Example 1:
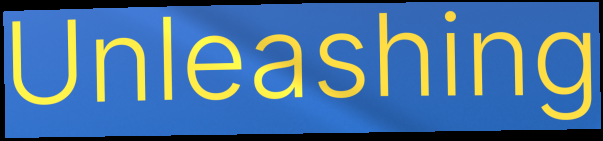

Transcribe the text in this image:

Unleashing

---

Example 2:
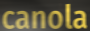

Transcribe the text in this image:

canola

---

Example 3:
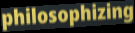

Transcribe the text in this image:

philosophizing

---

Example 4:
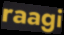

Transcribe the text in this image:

raagi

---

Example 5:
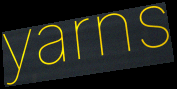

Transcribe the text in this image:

yarns